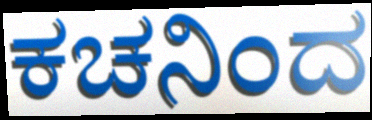
ಕಚನಿಂದ